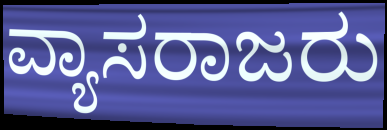
ವ್ಯಾಸರಾಜರು